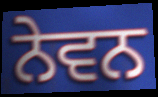
ਨੇਵਨ